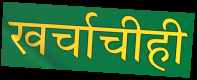
खर्चाचीही